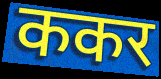
ककर